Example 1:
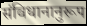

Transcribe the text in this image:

संविधानानुरूप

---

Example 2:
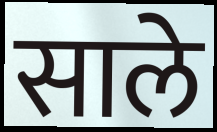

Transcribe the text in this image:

साले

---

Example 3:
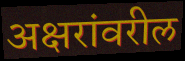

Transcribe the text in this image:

अक्षरांवरील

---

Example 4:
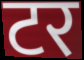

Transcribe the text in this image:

टर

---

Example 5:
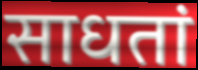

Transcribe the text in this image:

साधतां